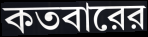
কতবারের